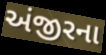
અંજીરના